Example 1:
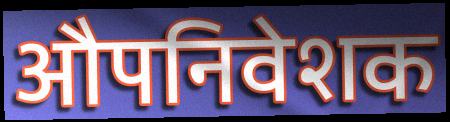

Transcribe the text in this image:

औपनिवेशक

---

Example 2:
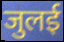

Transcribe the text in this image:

जुलई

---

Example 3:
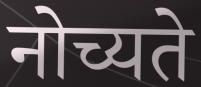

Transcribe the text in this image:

नोच्यते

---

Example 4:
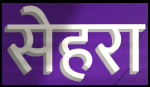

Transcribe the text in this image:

सेहरा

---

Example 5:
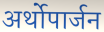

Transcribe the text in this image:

अर्थोपार्जन